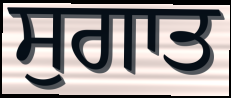
ਸੁਗਾਤ